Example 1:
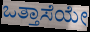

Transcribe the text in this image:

ಒತ್ತಾಸೆಯೇ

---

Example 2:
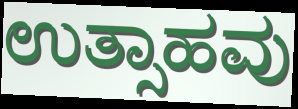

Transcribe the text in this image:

ಉತ್ಸಾಹವು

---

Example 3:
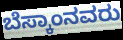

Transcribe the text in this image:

ಬೆಸ್ಕಾಂನವರು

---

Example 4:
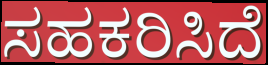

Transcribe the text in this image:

ಸಹಕರಿಸಿದೆ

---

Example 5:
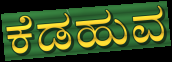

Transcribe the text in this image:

ಕೆಡಹುವ